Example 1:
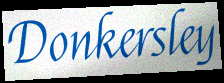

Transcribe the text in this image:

Donkersley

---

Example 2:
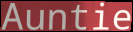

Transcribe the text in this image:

Auntie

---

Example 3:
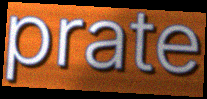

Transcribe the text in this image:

prate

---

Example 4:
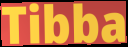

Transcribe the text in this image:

Tibba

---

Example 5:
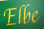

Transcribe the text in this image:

Elbe